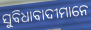
ସୁବିଧାବାଦୀମାନେ